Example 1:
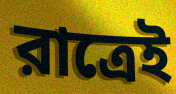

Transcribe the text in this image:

রাত্রেই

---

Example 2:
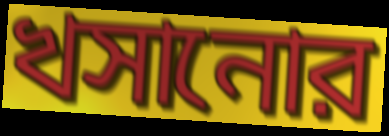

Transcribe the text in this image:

খসানোর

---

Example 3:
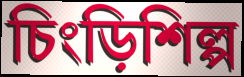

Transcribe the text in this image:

চিংড়িশিল্প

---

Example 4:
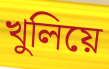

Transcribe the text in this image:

খুলিয়ে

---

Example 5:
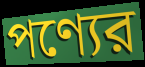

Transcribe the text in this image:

পণ্যের